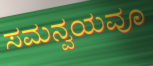
ಸಮನ್ವಯವೂ